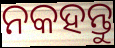
ନକହନ୍ତୁ